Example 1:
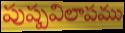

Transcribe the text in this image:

పుష్పవిలాపము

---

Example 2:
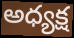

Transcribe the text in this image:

అధ్యక్ష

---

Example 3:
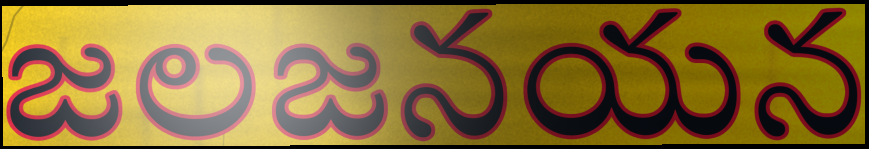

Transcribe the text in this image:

జలజనయన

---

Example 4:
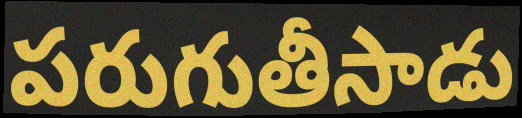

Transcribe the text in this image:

పరుగుతీసాడు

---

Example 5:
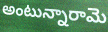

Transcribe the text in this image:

అంటున్నారామె